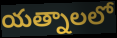
యత్నాలలో